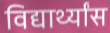
विद्यार्थ्यांस